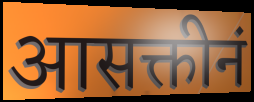
आसक्तीनं